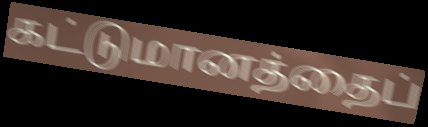
கட்டுமானத்தைப்